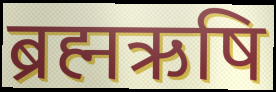
ब्रह्मऋषि